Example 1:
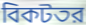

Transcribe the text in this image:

বিকটতর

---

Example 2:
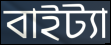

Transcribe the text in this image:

বাইট্যা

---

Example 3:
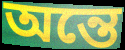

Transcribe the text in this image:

অন্তে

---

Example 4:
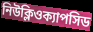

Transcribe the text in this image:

নিউক্লিওক্যাপসিড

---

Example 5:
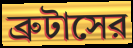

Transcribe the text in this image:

ব্রুটাসের